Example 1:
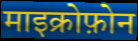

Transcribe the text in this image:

माइक्रोफ़ोन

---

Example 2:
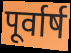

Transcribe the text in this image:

पूर्वार्ष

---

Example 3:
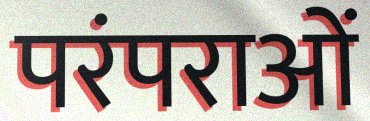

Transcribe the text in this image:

परंपराओं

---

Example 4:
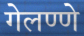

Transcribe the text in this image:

गेलण्णे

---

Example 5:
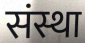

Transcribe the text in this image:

संस्था